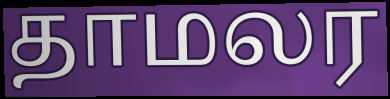
தாமலர